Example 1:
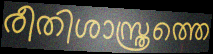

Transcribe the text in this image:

രീതിശാസ്ത്രത്തെ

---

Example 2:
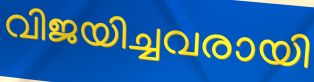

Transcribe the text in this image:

വിജയിച്ചവരായി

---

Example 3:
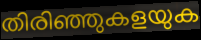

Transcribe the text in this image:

തിരിഞ്ഞുകളയുക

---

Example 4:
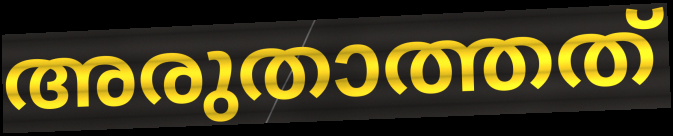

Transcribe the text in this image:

അരുതാത്തത്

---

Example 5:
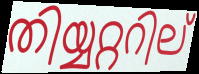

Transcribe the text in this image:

തിയ്യറ്ററില്